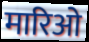
मारिओ